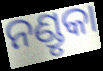
ନଣ୍ଡୃକା